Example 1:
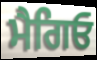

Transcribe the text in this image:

ਮੈਗਿਓ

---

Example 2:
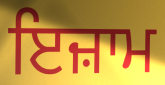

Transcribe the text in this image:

ਇਜ਼ਾਮ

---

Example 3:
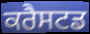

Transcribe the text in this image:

ਕਰੈਸਟਡ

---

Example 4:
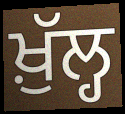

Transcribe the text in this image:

ਖ਼ੁੱਲ੍ਹ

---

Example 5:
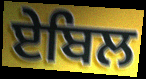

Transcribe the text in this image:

ਏਬਿਲ